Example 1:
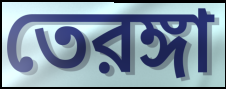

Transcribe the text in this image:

তেরঙ্গা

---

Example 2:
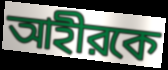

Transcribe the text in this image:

আহীরকে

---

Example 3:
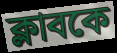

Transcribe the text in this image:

ক্লাবকে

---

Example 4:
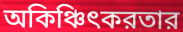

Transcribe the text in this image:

অকিঞ্চিৎকরতার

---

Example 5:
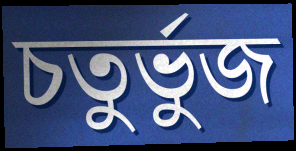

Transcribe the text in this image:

চতুর্ভুজ